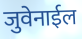
जुवेनाईल